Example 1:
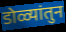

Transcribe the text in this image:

डोळ्यांतुन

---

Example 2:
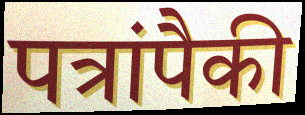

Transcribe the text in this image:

पत्रांपैकी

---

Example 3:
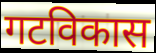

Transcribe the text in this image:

गटविकास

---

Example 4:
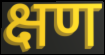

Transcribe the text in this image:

क्षण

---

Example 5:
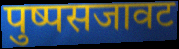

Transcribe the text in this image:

पुष्पसजावट